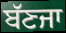
ਬੱਣਜਾ